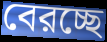
বেরচ্ছে